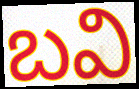
బవి